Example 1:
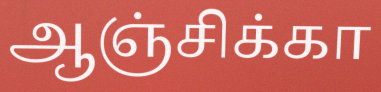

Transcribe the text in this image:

ஆஞ்சிக்கா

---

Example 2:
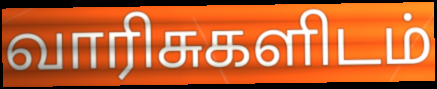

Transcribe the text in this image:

வாரிசுகளிடம்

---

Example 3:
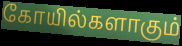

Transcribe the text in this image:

கோயில்களாகும்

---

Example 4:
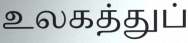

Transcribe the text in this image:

உலகத்துப்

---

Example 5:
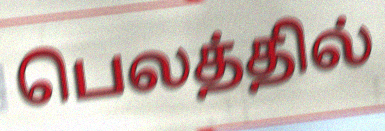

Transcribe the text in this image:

பெலத்தில்